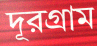
দূরগ্রাম